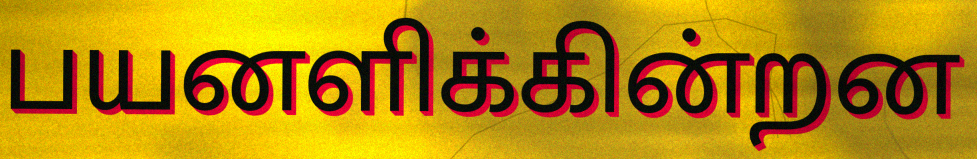
பயனளிக்கின்றன